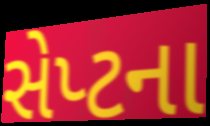
સેપ્ટના